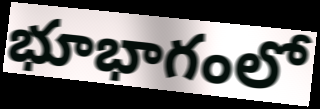
భూభాగంలో